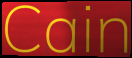
Cain